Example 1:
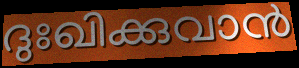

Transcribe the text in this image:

ദുഃഖിക്കുവാൻ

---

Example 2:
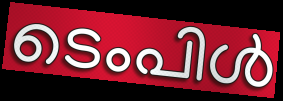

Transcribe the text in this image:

ടെംപിൾ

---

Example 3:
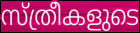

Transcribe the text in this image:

സ്ത്രീകളുടെ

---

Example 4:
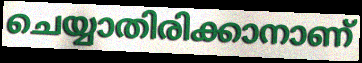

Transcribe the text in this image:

ചെയ്യാതിരിക്കാനാണ്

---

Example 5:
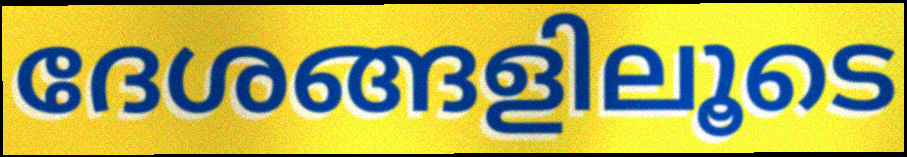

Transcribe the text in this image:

ദേശങ്ങളിലൂടെ